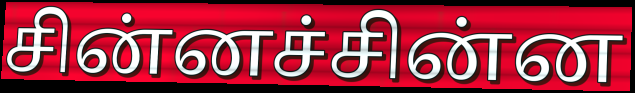
சின்னச்சின்ன